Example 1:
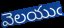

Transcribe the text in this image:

వెలయుఁ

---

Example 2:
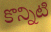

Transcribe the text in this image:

కొన్నిటి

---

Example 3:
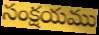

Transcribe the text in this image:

సంక్షయము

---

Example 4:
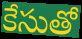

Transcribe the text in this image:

కేసుతో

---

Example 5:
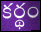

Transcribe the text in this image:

కర్థం